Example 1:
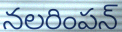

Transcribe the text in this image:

నలరింపన్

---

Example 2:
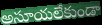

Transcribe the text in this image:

అసూయలేకుండా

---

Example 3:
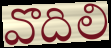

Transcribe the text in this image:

వొదిలి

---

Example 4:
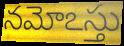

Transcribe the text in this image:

నమోఽస్తు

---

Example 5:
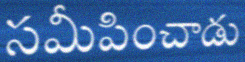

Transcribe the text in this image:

సమీపించాడు